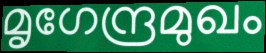
മൃഗേന്ദ്രമുഖം